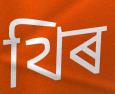
থিৰ